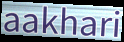
aakhari